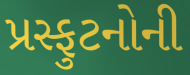
પ્રસ્ફુટનોની